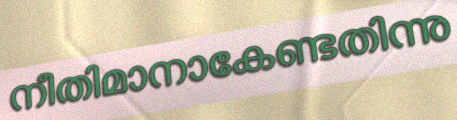
നീതിമാനാകേണ്ടതിന്നു